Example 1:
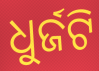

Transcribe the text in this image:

ଧୁର୍ଜଟି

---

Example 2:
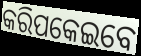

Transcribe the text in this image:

କରିପକେଇବେ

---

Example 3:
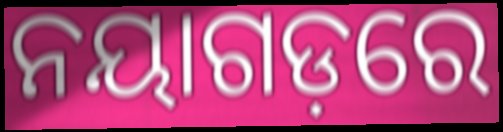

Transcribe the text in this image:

ନୟାଗଡ଼ରେ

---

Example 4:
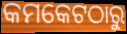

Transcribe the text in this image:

କମକେଟଠାରୁ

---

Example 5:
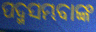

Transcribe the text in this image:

ପଦ୍ମସମ୍ଭବାଙ୍କ